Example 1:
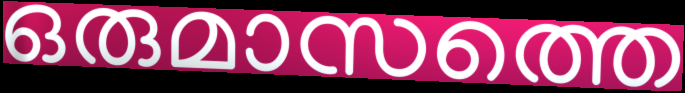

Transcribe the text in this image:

ഒരുമാസത്തെ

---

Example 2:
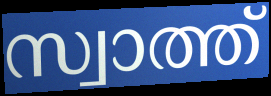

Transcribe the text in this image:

സ്വാത്ത്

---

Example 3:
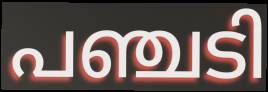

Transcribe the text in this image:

പഞ്ചടി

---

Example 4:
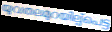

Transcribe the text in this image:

യുവതലമുറയില്പ്പെട്ട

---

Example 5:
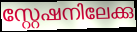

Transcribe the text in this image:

സ്റ്റേഷനിലേക്കു